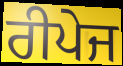
ਰੀਪੇਜ